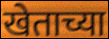
खेताच्या